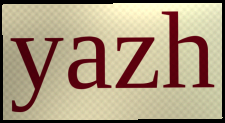
yazh